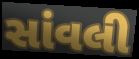
સાંવલી